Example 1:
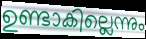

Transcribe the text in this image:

ഉണ്ടാകില്ലെന്നും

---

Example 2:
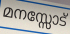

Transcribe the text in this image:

മനസ്സോട്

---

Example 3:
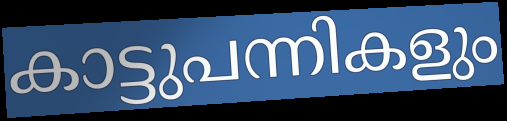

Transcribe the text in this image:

കാട്ടുപന്നികളും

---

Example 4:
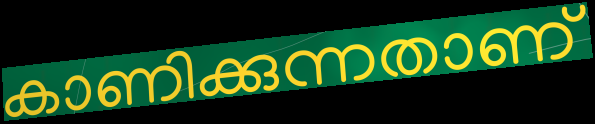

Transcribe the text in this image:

കാണിക്കുന്നതാണ്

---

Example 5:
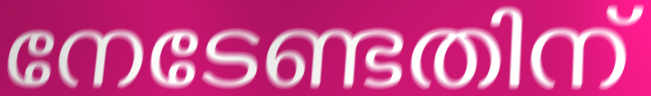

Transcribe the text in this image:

നേടേണ്ടതിന്